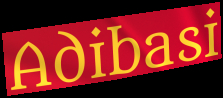
Adibasi